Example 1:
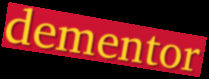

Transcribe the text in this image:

dementor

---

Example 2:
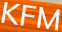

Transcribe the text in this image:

KFM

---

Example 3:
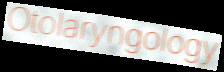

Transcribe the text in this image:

Otolaryngology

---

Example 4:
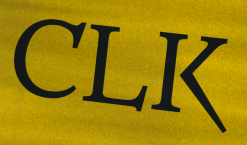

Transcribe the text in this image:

CLK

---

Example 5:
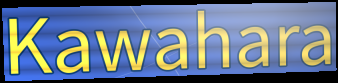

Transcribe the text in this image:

Kawahara